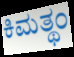
ಕಿಮತ್ಥಂ